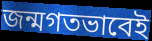
জন্মগতভাবেই